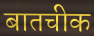
बातचीक